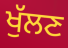
ਖੁੱਲਣ